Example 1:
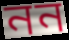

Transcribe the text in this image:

নন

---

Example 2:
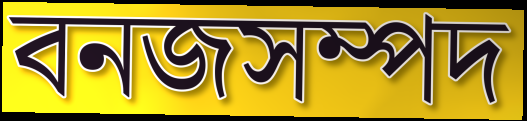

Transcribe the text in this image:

বনজসম্পদ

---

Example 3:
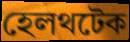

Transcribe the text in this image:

হেলথটেক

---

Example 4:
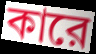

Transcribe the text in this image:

কারে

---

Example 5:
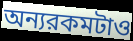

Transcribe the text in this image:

অন্যরকমটাও